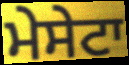
ਮੇਸੇਟਾ